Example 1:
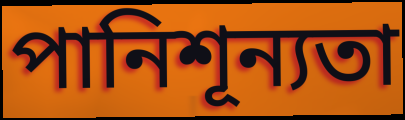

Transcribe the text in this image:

পানিশূন্যতা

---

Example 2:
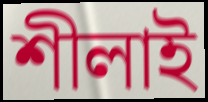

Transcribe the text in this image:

শীলাই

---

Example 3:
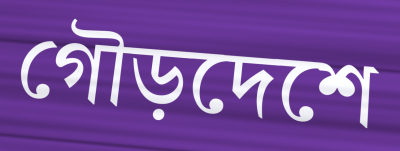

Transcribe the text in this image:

গৌড়দেশে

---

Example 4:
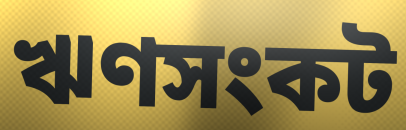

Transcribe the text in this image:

ঋণসংকট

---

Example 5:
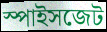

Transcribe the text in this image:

স্পাইসজেট